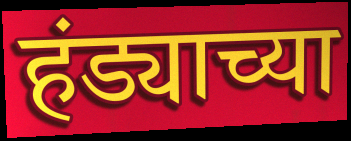
हंड्याच्या